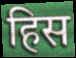
हिस